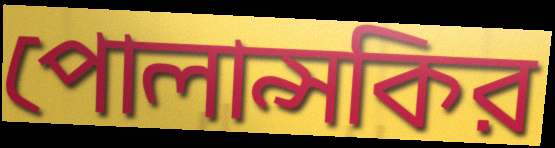
পোলান্সকির